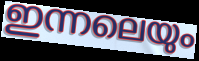
ഇന്നലെയും